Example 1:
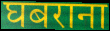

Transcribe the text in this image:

घबराना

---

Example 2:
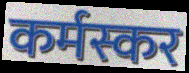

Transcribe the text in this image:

कर्मस्कर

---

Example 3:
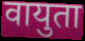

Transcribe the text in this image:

वायुता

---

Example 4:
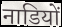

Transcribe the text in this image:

नाडियों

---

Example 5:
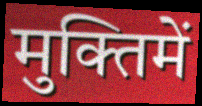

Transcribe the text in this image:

मुक्तिमें